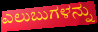
ಎಲುಬುಗಳನ್ನು